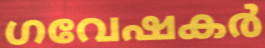
ഗവേഷകർ